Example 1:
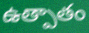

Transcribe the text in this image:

ఉత్పాతం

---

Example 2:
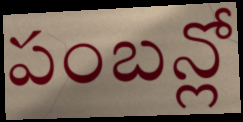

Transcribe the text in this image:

పంబన్లో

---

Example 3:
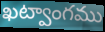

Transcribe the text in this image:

ఖట్వాంగము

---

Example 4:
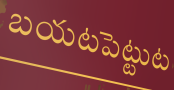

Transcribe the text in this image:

బయటపెట్టుట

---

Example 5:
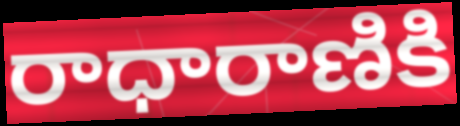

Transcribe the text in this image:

రాధారాణికి